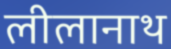
लीलानाथ